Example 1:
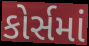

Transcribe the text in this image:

કોર્સમાં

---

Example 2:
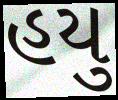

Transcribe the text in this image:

હયુ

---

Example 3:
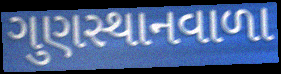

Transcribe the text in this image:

ગુણસ્થાનવાળા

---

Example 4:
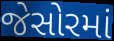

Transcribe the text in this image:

જેસોરમાં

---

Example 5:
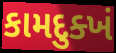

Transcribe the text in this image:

કામદુક્ખં